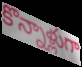
కొన్నాళ్లుగా